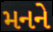
મનને